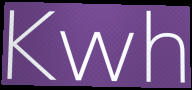
Kwh